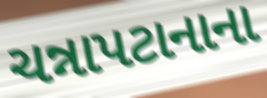
ચન્નાપટાનાના